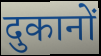
दुकानों